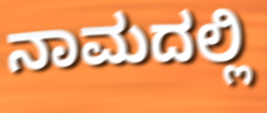
ನಾಮದಲ್ಲಿ